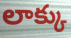
లాక్కు